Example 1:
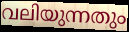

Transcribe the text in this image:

വലിയുന്നതും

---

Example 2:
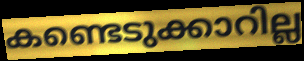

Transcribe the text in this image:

കണ്ടെടുക്കാറില്ല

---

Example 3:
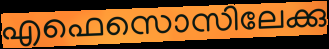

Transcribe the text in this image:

എഫെസൊസിലേക്കു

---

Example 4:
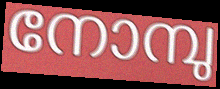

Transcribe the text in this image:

നോമ്പു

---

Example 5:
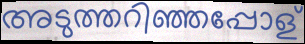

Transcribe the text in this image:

അടുത്തറിഞ്ഞപ്പോള്